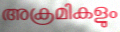
അക്രമികളും